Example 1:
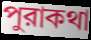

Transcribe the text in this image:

পুরাকথা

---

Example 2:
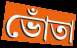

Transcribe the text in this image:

ভোঁতা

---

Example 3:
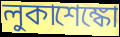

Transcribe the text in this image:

লুকাশেঙ্কো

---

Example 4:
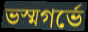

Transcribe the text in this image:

ভস্মগর্ভে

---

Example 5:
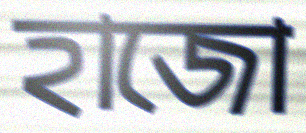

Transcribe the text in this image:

হাজো